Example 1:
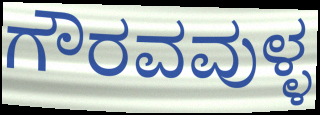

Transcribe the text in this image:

ಗೌರವವುಳ್ಳ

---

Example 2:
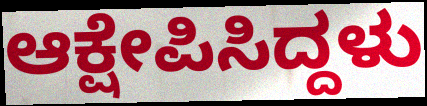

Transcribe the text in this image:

ಆಕ್ಷೇಪಿಸಿದ್ದಳು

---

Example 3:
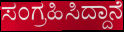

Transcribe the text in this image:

ಸಂಗ್ರಹಿಸಿದ್ದಾನೆ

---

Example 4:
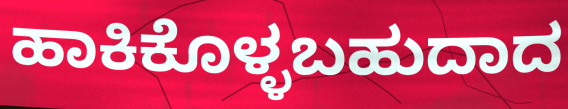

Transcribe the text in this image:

ಹಾಕಿಕೊಳ್ಳಬಹುದಾದ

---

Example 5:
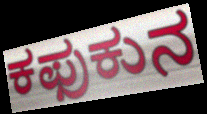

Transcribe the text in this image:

ಕಫುಕುನ